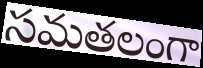
సమతలంగా